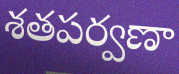
శతపర్వణా